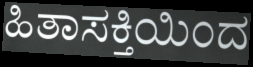
ಹಿತಾಸಕ್ತಿಯಿಂದ